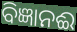
ବିଜ୍ଞାନଈ